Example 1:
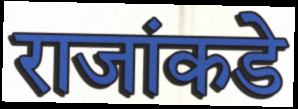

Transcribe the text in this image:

राजांकडे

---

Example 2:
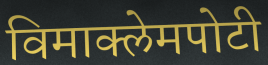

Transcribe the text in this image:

विमाक्लेमपोटी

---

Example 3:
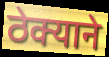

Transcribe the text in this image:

ठेक्याने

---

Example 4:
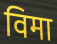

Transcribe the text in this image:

विमा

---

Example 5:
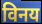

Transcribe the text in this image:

विनय